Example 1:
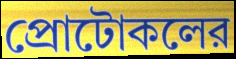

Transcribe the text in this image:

প্রোটোকলের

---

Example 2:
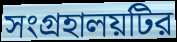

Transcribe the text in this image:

সংগ্রহালয়টির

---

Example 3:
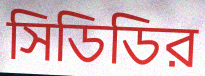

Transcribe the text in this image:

সিডিডির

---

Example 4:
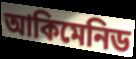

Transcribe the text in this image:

আকিমেনিড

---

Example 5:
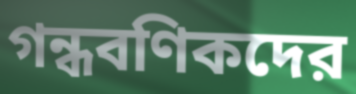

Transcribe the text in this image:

গন্ধবণিকদের